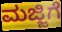
ಮಜ್ಜಿಗೆ